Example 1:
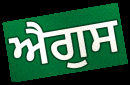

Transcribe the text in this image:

ਐਗੁਸ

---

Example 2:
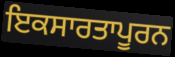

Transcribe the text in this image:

ਇਕਸਾਰਤਾਪੂਰਨ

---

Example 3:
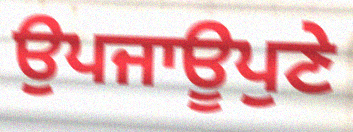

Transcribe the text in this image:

ਉਪਜਾਊਪੁਣੇ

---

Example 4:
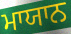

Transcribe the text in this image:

ਮਾਯਾਨ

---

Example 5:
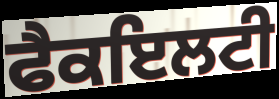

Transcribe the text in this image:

ਫੈਕਇਲਟੀ